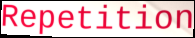
Repetition